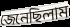
জেনেছিলাম